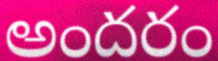
అందరం